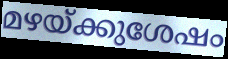
മഴയ്ക്കുശേഷം